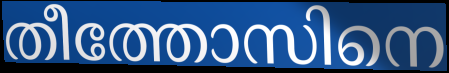
തീത്തോസിനെ